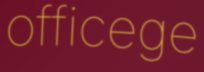
officege